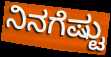
ನಿನಗೆಷ್ಟು